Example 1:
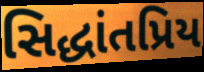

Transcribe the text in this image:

સિદ્ધાંતપ્રિય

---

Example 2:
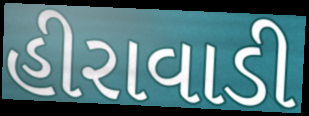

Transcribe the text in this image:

હીરાવાડી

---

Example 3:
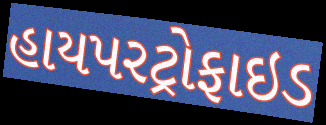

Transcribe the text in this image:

હાયપરટ્રોફાઇડ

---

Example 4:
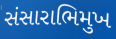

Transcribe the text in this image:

સંસારાભિમુખ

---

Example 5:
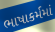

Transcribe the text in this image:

ભાષાકર્મમાં